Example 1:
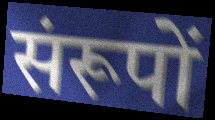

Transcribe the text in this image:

संरूपों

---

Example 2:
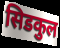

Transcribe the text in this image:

सिडकुल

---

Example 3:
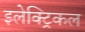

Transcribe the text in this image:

इलेक्ट्रिकल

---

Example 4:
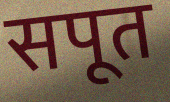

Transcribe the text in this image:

सपूत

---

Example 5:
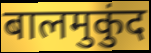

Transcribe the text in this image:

बालमुकुंद